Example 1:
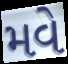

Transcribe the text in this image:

મવે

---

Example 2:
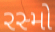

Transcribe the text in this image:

રસ્મો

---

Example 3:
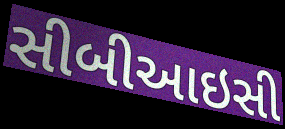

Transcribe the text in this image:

સીબીઆઇસી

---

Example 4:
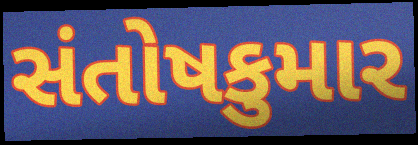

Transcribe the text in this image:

સંતોષકુમાર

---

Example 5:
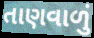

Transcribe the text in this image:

તાણવાળું